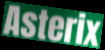
Asterix